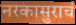
नरकासुराचं